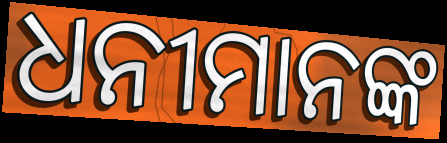
ଧନୀମାନଙ୍କ